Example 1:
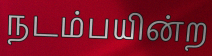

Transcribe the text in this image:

நடம்பயின்ற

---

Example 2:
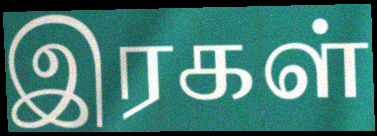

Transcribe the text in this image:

இரகள்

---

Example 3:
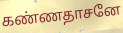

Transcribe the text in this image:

கண்ணதாசனே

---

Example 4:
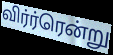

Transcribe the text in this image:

விர்ர்ரென்று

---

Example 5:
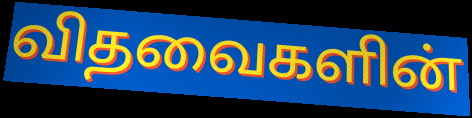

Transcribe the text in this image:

விதவைகளின்